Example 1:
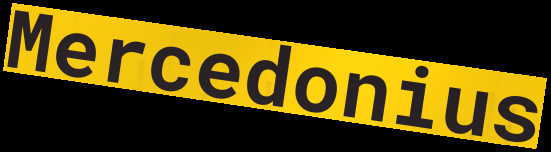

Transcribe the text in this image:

Mercedonius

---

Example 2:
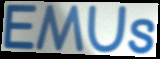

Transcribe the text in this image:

EMUs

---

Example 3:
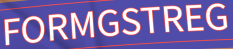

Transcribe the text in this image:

FORMGSTREG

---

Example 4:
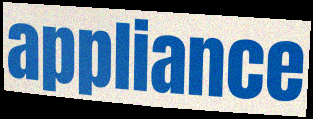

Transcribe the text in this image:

appliance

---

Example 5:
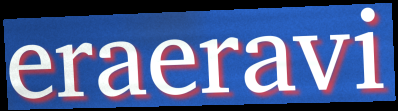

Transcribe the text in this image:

eraeravi